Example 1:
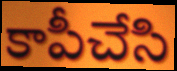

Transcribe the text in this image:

కాపీచేసి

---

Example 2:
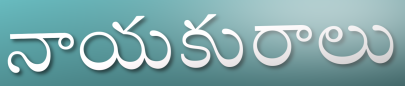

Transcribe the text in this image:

నాయకురాలు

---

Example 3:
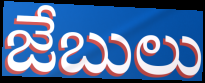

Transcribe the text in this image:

జేబులు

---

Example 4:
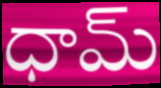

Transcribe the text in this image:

ధామ్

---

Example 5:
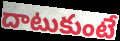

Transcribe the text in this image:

దాటుకుంటే